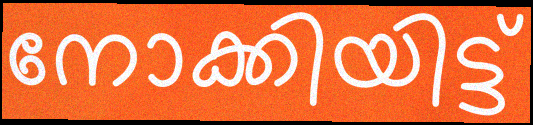
നോക്കിയിട്ട്